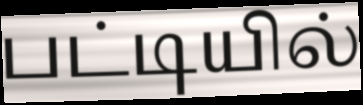
பட்டியில்